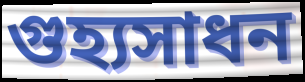
গুহ্যসাধন